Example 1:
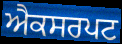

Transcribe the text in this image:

ਐਕਸਰਪਟ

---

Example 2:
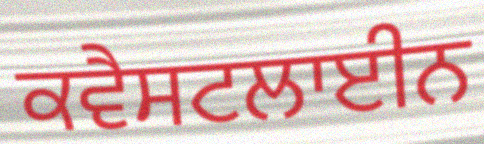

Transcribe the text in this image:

ਕਵੈਸਟਲਾਈਨ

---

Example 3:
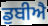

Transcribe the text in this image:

ਡੁਬੀਐ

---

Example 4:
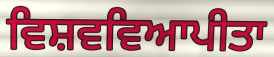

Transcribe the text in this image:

ਵਿਸ਼ਵਵਿਆਪੀਤਾ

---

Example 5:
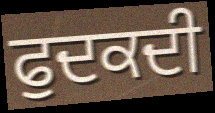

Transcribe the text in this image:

ਫੁਦਕਦੀ